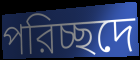
পরিচ্ছদে